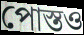
পোস্তও